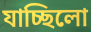
যাচ্ছিলো